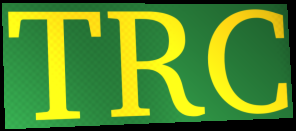
TRC